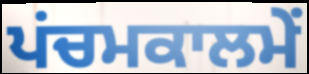
ਪਂਚਮਕਾਲਮੇਂ